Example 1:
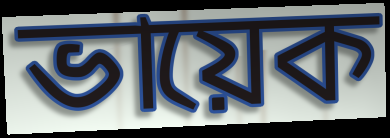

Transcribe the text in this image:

ভায়েক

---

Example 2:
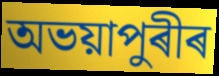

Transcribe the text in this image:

অভয়াপুৰীৰ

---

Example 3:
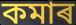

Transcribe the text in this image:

কমাৰ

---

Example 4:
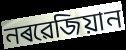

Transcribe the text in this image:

নৰৱেজিয়ান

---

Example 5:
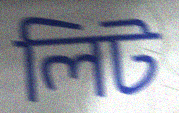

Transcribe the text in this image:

লিট